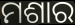
ମଶାର